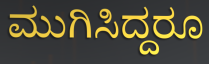
ಮುಗಿಸಿದ್ದರೂ